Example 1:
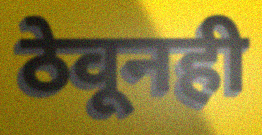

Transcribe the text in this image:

ठेवूनही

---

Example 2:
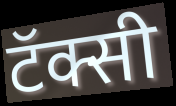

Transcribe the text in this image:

टॅक्सी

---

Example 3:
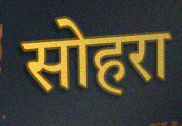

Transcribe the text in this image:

सोहरा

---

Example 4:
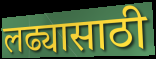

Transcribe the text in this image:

लढ्यासाठी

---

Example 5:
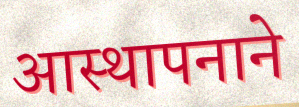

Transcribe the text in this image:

आस्थापनाने